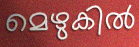
മെഴുകിൽ